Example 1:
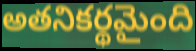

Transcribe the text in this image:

అతనికర్థమైంది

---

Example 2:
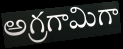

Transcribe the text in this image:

అగ్రగామిగా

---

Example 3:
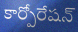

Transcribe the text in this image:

కార్పోరేషన్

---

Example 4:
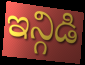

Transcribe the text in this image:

ఇన్గిడి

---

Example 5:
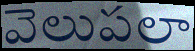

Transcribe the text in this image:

వెలుపలా